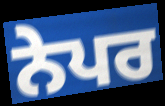
ਨੇਪਰ